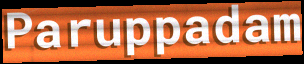
Paruppadam